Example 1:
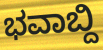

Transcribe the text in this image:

ಭವಾಬ್ದಿ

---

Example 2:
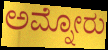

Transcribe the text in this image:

ಅಮ್ನೋರು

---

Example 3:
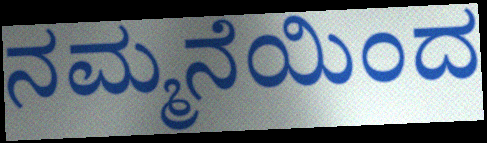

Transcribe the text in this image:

ನಮ್ಮನೆಯಿಂದ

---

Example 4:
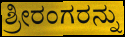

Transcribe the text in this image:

ಶ್ರೀರಂಗರನ್ನು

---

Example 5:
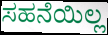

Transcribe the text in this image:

ಸಹನೆಯಿಲ್ಲ